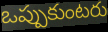
ఒప్పుకుంటరు